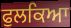
ਫੁਲਕਿਆ